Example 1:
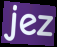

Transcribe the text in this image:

jez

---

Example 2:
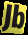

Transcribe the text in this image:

Jb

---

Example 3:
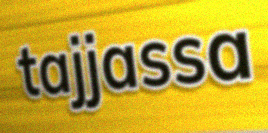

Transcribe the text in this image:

tajjassa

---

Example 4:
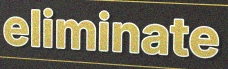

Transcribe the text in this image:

eliminate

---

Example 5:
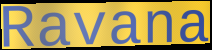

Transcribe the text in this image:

Ravana